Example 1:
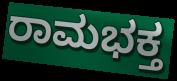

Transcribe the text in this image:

ರಾಮಭಕ್ತ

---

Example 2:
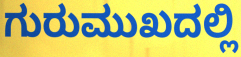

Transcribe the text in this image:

ಗುರುಮುಖದಲ್ಲಿ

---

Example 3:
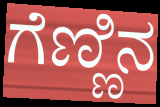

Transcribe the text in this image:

ಗೆಣ್ಣಿನ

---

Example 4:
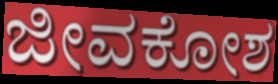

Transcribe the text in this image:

ಜೀವಕೋಶ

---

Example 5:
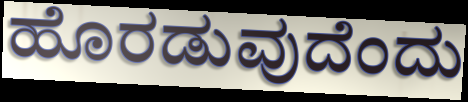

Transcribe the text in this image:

ಹೊರಡುವುದೆಂದು